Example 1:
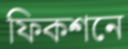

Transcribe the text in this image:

ফিকশনে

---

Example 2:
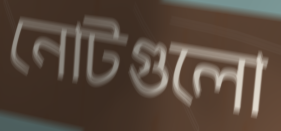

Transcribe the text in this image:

নোটগুলো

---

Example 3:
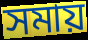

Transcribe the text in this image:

সমায়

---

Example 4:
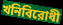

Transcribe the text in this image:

খনিবিরোধী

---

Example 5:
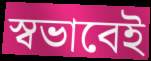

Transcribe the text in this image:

স্বভাবেই